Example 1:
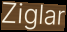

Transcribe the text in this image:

Ziglar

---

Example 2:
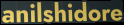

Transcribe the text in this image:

anilshidore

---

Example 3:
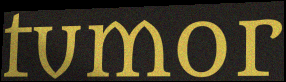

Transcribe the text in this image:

tumor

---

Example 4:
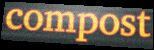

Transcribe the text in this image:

compost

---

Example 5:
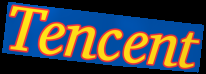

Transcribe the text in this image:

Tencent